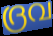
ദ്രവ